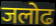
जलोढ